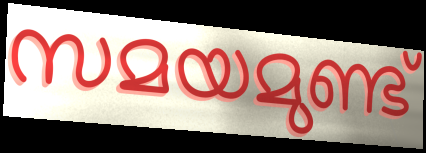
സമയമുണ്ട്